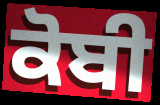
ਕੋਬੀ